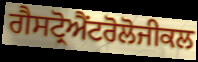
ਗੈਸਟ੍ਰੋਐਂਟਰੋਲੋਜੀਕਲ